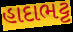
હાદાભટ્ટ